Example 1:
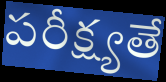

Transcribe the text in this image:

పరీక్ష్యతే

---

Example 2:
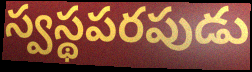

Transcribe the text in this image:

స్వస్థపరపుడు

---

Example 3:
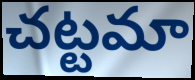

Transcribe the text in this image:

చట్టమా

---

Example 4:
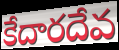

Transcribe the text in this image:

కేదారదేవ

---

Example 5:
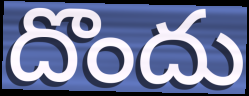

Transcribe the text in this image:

దొందు